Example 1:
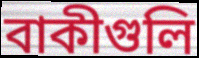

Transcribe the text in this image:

বাকীগুলি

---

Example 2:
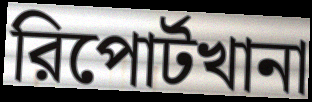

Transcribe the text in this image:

রিপোর্টখানা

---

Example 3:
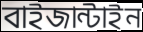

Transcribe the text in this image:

বাইজান্টাইন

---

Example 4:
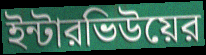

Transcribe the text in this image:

ইন্টারভিউয়ের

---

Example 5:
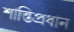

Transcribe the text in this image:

শান্তিপ্রধান